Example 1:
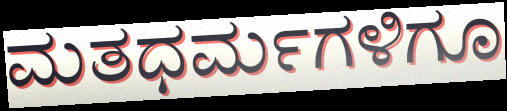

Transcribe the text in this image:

ಮತಧರ್ಮಗಳಿಗೂ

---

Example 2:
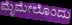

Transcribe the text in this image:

ಮೈಮೇಲೊಂದು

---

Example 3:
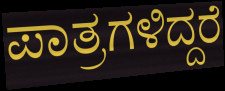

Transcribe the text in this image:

ಪಾತ್ರಗಳಿದ್ದರೆ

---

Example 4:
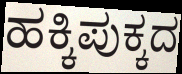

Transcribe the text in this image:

ಹಕ್ಕಿಪುಕ್ಕದ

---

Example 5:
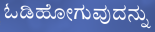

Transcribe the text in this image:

ಓಡಿಹೋಗುವುದನ್ನು